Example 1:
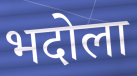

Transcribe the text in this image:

भदोला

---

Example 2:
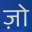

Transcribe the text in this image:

ज़ो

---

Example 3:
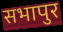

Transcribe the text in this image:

सभापुर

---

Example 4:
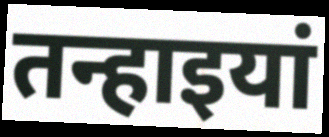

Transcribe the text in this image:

तन्हाइयां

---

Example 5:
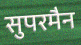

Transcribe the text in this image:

सुपरमैन